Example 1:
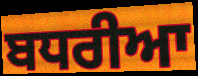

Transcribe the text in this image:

ਬਧਰੀਆ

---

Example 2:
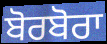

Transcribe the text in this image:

ਬੋਰਬੋਰਾ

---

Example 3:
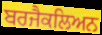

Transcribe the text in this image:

ਬਰਜੈਕਲਿਅਨ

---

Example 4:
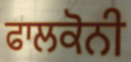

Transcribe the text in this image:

ਫਾਲਕੋਨੀ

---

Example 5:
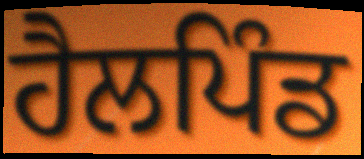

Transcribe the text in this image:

ਹੈਲਪਿੰਡ